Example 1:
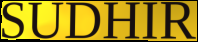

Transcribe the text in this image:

SUDHIR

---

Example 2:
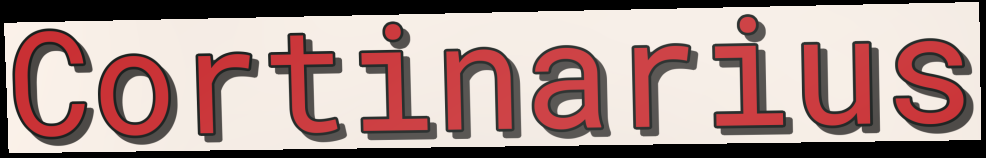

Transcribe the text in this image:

Cortinarius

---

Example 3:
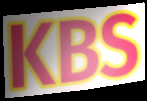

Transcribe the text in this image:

KBS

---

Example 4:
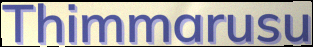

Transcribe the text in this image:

Thimmarusu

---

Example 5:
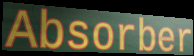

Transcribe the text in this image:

Absorber